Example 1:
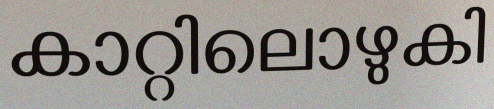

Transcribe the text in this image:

കാറ്റിലൊഴുകി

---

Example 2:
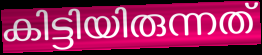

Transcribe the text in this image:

കിട്ടിയിരുന്നത്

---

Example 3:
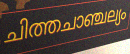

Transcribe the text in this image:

ചിത്തചാഞ്ചല്യം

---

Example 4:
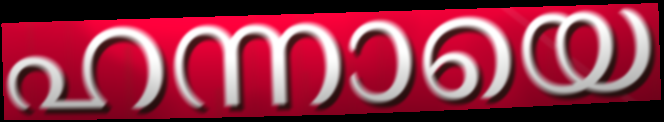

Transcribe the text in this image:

ഹന്നായെ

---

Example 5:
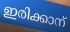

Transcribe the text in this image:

ഇരിക്കാന്